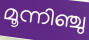
മൂന്നിഞ്ചു